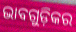
ଭାବଗୁଡ଼ିକର